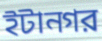
ইটানগর